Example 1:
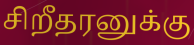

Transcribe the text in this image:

சிறீதரனுக்கு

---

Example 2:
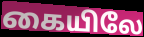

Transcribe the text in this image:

கையிலே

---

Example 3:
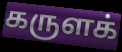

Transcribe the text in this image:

கருளக்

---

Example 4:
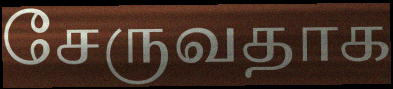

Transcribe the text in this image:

சேருவதாக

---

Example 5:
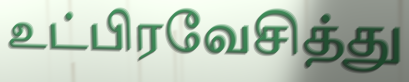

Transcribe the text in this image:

உட்பிரவேசித்து